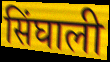
सिंघाली